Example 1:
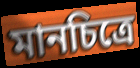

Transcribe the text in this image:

মানচিত্রে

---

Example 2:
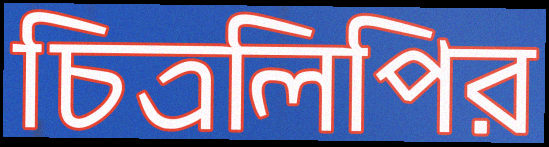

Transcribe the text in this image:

চিত্রলিপির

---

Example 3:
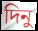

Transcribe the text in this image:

দিনু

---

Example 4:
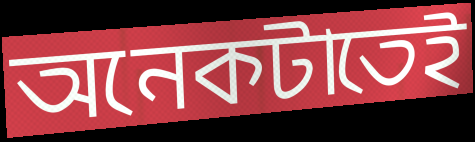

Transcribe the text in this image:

অনেকটাতেই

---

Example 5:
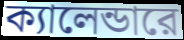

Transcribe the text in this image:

ক্যালেন্ডারে